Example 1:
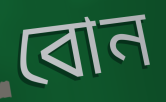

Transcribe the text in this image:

বোন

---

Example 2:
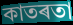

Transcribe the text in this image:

কাতৰতা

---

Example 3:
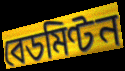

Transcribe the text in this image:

বেডমিণ্টন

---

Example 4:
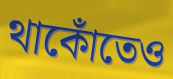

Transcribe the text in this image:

থাকোঁতেও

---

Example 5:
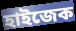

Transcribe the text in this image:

হাইজেক